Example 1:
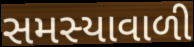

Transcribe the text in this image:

સમસ્યાવાળી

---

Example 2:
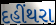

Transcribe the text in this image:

દહીંથરા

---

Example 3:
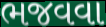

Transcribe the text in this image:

ભજવવા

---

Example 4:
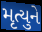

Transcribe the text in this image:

મૃત્યુને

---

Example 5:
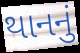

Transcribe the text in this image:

થાનનું